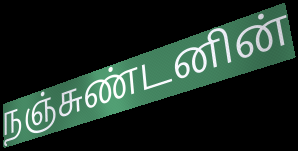
நஞ்சுண்டனின்